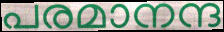
പരമാനന്ദ